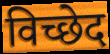
विच्छेद